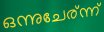
ഒന്നുചേര്ന്ന്